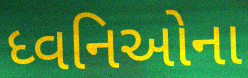
ધ્વનિઓના